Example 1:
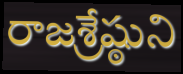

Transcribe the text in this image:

రాజశ్రేష్ఠుని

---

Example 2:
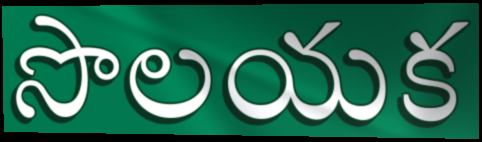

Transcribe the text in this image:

సొలయక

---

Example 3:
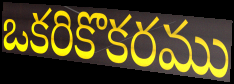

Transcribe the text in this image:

ఒకరికొకరము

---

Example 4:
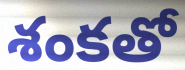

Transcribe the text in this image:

శంకతో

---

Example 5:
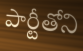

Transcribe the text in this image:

పార్టీతోని